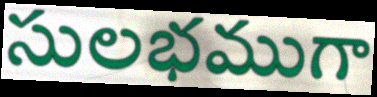
సులభముగా